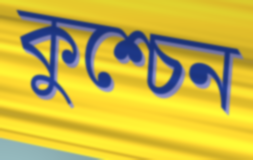
কুশ্চেন